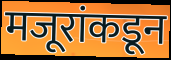
मजूरांकडून